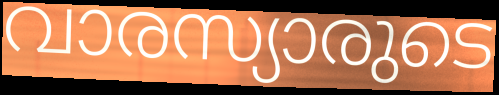
വാരസ്യാരുടെ